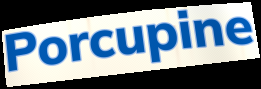
Porcupine